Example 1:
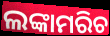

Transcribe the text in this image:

ଲଙ୍କାମରିଚ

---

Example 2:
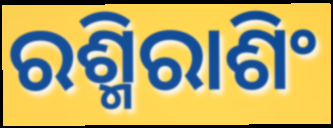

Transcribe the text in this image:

ରଶ୍ମିରାଶିଂ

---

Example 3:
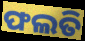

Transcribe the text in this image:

ଫଲତି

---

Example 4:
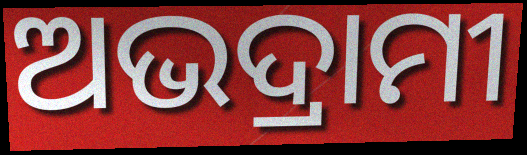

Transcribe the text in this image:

ଅଭଦ୍ରାମୀ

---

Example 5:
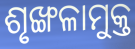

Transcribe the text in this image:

ଶୃଙ୍ଖଳାମୁକ୍ତ